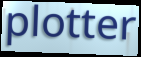
plotter